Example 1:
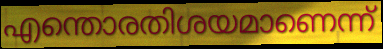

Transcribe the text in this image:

എന്തൊരതിശയമാണെന്ന്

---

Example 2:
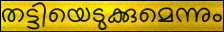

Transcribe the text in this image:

തട്ടിയെടുക്കുമെന്നും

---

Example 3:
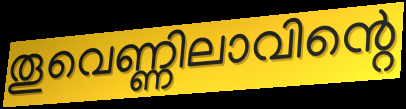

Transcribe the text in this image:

തൂവെണ്ണിലാവിന്റെ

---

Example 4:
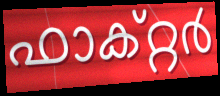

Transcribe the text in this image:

ഫാക്റ്റർ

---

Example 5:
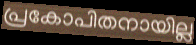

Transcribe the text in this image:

പ്രകോപിതനായില്ല